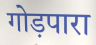
गोड़पारा